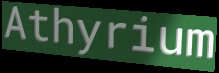
Athyrium